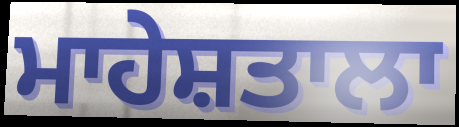
ਮਾਹੇਸ਼ਤਾਲਾ